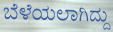
ಬೆಳೆಯಲಾಗಿದ್ದು